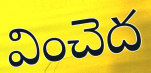
వించెద